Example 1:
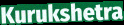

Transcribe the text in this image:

Kurukshetra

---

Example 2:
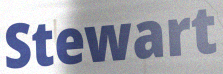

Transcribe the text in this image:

Stewart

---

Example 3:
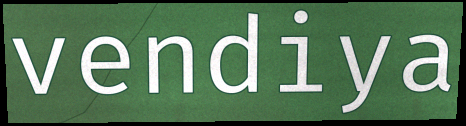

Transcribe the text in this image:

vendiya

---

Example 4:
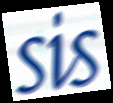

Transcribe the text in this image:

sis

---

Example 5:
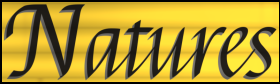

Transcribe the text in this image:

Natures